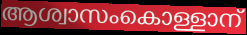
ആശ്വാസംകൊള്ളാന്